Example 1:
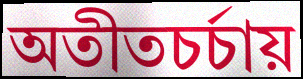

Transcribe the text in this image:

অতীতচর্চায়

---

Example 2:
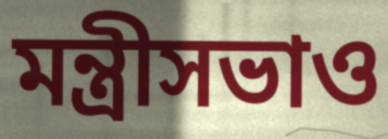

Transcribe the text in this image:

মন্ত্রীসভাও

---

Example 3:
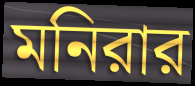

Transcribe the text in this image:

মনিরার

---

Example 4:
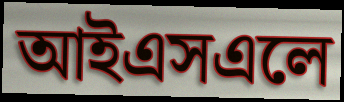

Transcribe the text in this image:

আইএসএলে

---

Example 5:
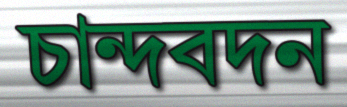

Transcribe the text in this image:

চান্দবদন